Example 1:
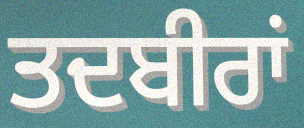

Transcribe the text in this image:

ਤਦਬੀਰਾਂ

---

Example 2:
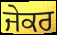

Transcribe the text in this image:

ਜੇਕਰ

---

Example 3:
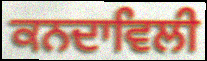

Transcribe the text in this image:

ਕਨਦਾਵਿਲੀ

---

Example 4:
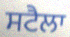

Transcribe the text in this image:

ਸਟੈਲਾ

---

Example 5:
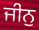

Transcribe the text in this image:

ਜੀਨੁ